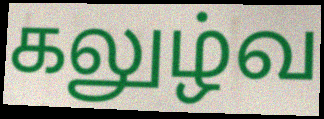
கலுழ்வ